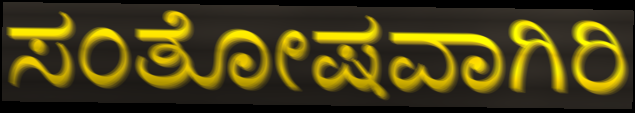
ಸಂತೋಷವಾಗಿರಿ